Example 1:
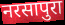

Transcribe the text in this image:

नरसापुरा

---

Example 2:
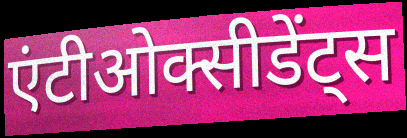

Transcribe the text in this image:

एंटीओक्सीडेंट्स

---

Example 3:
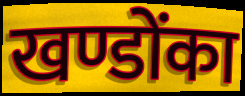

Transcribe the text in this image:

खण्डोंका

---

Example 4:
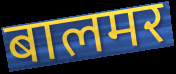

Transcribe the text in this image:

बालमर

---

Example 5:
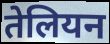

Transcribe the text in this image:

तेलियन